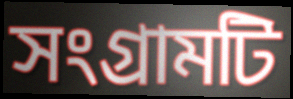
সংগ্রামটি